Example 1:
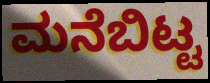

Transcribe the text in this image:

ಮನೆಬಿಟ್ಟ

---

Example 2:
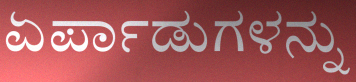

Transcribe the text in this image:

ಏರ್ಪಾಡುಗಳನ್ನು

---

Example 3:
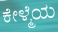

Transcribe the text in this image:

ಕೇಳ್ಮೆಯ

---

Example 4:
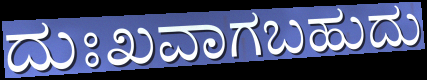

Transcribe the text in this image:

ದುಃಖವಾಗಬಹುದು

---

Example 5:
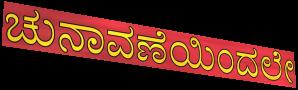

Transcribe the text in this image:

ಚುನಾವಣೆಯಿಂದಲೇ